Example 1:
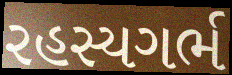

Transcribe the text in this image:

રહસ્યગર્ભ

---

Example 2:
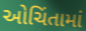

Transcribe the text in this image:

ઓચિંતામાં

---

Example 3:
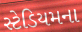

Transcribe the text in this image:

સ્ટેડિયમના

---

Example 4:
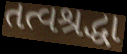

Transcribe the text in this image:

તત્વશ્રદ્ધા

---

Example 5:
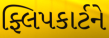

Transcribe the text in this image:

ફ્લિપકાર્ટને